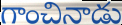
గాంచినాడు